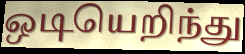
ஒடியெறிந்து